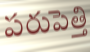
పరుపెత్తి